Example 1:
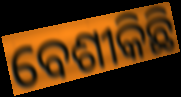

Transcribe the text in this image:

ବେଶୀକିଛି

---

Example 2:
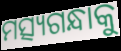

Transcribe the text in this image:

ମତ୍ସ୍ୟଗନ୍ଧାକୁ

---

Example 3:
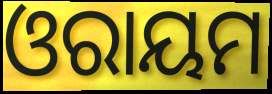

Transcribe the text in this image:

ଓରାୟମ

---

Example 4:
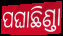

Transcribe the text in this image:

ପଘାଛିଣ୍ଡା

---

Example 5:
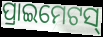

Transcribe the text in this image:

ପ୍ରାଇମେଟସ୍